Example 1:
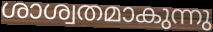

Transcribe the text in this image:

ശാശ്വതമാകുന്നു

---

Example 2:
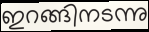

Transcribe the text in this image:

ഇറങ്ങിനടന്നു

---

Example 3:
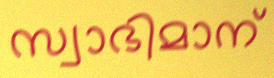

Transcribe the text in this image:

സ്വാഭിമാന്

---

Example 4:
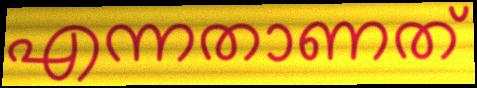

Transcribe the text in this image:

എന്നതാണത്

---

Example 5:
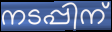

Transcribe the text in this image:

നടപ്പിന്